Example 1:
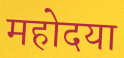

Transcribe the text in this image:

महोदया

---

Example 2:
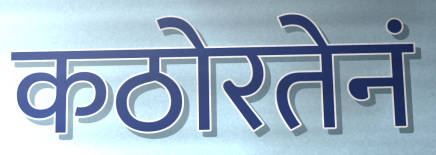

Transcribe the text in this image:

कठोरतेनं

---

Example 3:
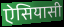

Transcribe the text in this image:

ऐसियासी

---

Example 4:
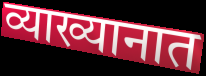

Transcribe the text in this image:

व्याख्यानात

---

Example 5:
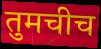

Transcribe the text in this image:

तुमचीच